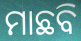
ମାଛବି